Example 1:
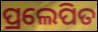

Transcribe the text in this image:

ପ୍ରଲେପିତ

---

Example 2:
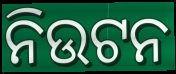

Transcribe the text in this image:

ନିଉଟନ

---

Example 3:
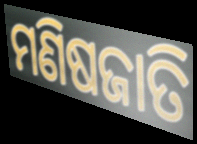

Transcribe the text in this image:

ମଣିଷଜାତି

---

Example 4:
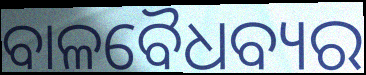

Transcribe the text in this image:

ବାଳବୈଧବ୍ୟର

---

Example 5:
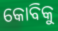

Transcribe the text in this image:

କୋବିକୁ